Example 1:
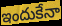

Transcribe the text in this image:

ఇందుకేనా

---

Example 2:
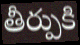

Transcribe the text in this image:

తీర్పుకి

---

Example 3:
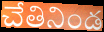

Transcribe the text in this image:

చేతినిండ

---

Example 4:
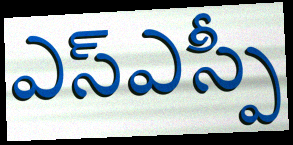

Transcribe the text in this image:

ఎస్ఎస్పీ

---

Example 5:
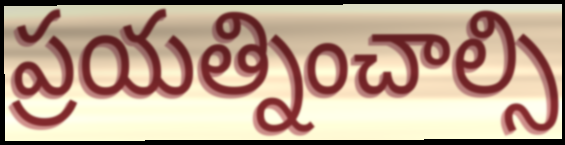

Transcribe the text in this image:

ప్రయత్నించాల్సి